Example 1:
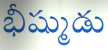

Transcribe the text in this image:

భీష్ముడు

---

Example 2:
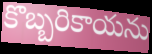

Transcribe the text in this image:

కొబ్బరికాయను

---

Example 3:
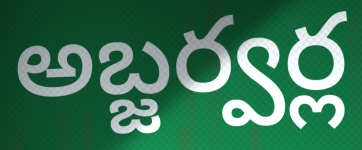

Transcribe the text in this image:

అబ్జర్వర్ల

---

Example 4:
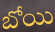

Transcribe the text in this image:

బోయి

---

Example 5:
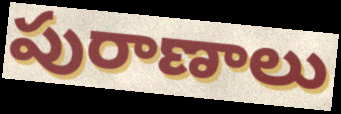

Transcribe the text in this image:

పురాణాలు